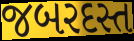
જબરદસ્ત